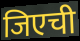
जिएची